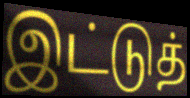
இட்டுத்